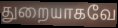
துறையாகவே